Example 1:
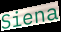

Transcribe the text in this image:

Siena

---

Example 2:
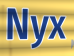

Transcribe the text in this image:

Nyx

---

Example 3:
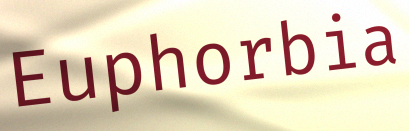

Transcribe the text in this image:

Euphorbia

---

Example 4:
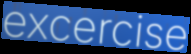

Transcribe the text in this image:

excercise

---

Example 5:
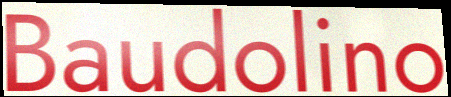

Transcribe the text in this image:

Baudolino